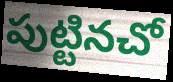
పుట్టినచో